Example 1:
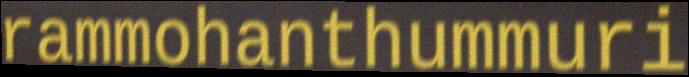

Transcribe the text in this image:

rammohanthummuri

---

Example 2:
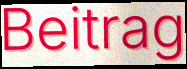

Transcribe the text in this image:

Beitrag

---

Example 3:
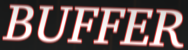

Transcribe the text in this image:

BUFFER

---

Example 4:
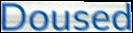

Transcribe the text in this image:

Doused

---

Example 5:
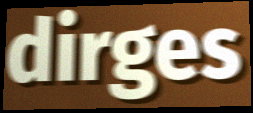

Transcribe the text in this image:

dirges